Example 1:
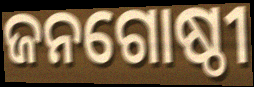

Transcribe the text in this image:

ଜନଗୋଷ୍ଠୀ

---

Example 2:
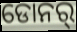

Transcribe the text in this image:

ଡୋନର୍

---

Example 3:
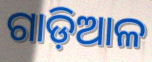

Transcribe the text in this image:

ଗାଡ଼ିଆଳ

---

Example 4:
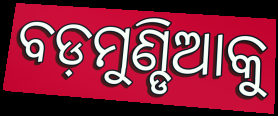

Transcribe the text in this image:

ବଡ଼ମୁଣ୍ଡିଆକୁ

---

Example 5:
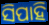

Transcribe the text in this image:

ସିପାହି